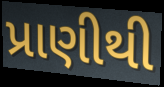
પ્રાણીથી